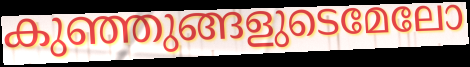
കുഞ്ഞുങ്ങളുടെമേലോ